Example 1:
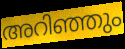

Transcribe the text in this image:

അറിഞ്ഞും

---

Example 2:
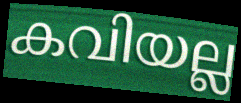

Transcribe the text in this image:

കവിയല്ല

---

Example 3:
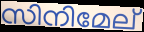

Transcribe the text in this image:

സിനിമേല്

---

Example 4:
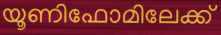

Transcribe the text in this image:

യൂണിഫോമിലേക്ക്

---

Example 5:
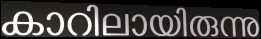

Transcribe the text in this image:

കാറിലായിരുന്നു